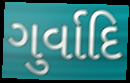
ગુર્વાદિ